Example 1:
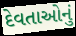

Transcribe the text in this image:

દેવતાઓનું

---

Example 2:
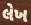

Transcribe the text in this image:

લેખ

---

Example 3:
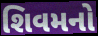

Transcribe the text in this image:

શિવમનો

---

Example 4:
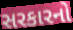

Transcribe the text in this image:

સરકારનો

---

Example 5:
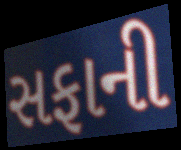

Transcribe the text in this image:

સફાની